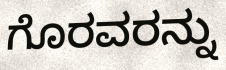
ಗೊರವರನ್ನು